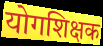
योगशिक्षक